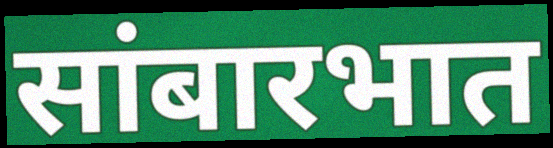
सांबारभात